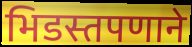
भिडस्तपणाने